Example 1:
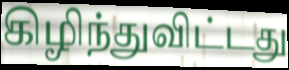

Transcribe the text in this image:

கிழிந்துவிட்டது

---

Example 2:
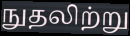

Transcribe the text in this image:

நுதலிற்று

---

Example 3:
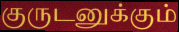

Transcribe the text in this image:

குருடனுக்கும்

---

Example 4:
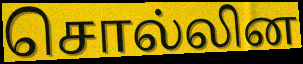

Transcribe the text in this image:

சொல்லின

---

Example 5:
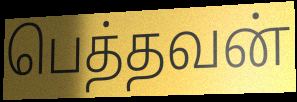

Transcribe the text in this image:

பெத்தவன்